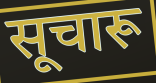
सूचारू